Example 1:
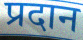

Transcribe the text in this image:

प्रदान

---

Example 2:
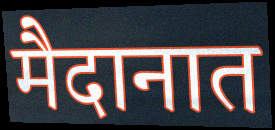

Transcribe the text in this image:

मैदानात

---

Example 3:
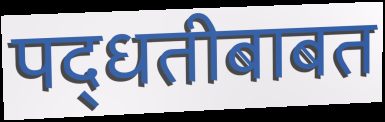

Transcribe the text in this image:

पद्धतीबाबत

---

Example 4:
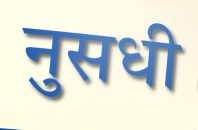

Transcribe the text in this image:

नुसधी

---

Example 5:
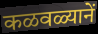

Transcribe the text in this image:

कळवळ्यानें